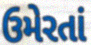
ઉમેરતાં